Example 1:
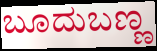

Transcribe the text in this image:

ಬೂದುಬಣ್ಣ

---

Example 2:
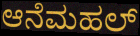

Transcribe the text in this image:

ಆನೆಮಹಲ್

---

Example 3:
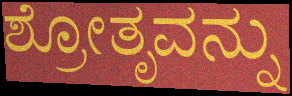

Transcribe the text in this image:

ಶ್ರೋತೃವನ್ನು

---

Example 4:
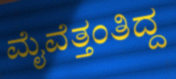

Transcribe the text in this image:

ಮೈವೆತ್ತಂತಿದ್ದ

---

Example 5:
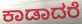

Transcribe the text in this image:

ಕಾಡಾದರೆ